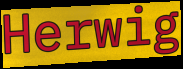
Herwig